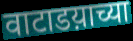
वाटाडय़ाच्या